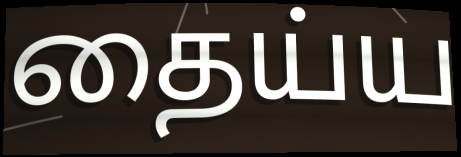
தைய்ய